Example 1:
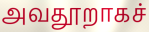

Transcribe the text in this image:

அவதூறாகச்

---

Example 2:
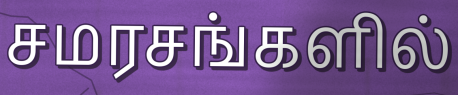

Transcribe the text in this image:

சமரசங்களில்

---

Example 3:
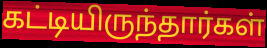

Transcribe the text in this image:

கட்டியிருந்தார்கள்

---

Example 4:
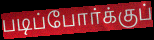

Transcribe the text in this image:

படிப்போர்க்குப்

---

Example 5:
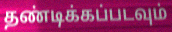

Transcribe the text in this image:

தண்டிக்கப்படவும்